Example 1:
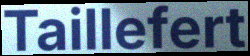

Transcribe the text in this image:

Taillefert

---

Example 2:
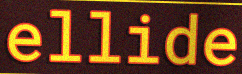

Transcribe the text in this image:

ellide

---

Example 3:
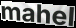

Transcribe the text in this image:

mahel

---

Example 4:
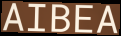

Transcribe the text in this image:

AIBEA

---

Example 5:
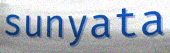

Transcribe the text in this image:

sunyata